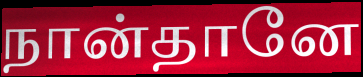
நான்தானே